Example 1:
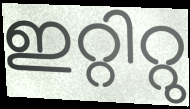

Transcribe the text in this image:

ഇറ്റിറ്റു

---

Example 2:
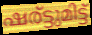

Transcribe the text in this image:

ഷര്ട്ടുമിട്ട്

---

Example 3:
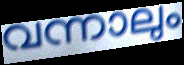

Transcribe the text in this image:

വന്നാലും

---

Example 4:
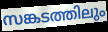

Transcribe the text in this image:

സങ്കടത്തിലും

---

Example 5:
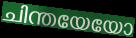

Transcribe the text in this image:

ചിന്തയേയോ